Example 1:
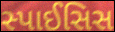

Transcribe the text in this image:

સ્પાઈસિસ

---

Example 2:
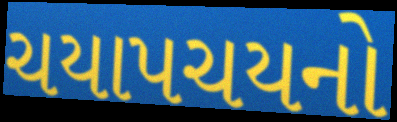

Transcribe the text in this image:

ચયાપચયનો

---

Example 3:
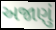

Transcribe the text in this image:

અજાણું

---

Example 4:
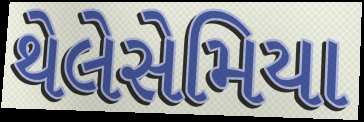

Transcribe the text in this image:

થેલેસેમિયા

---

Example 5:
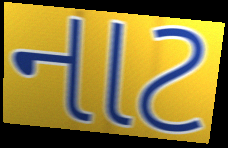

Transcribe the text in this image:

નાટ